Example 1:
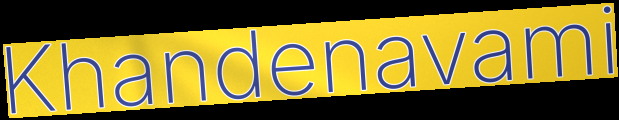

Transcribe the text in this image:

Khandenavami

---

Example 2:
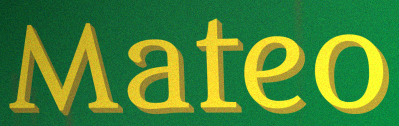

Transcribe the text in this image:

Mateo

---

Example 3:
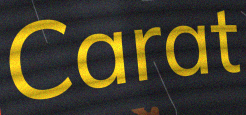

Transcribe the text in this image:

Carat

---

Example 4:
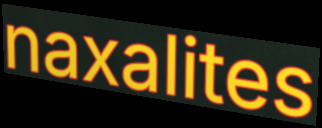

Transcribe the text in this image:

naxalites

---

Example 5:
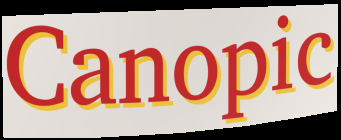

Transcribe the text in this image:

Canopic